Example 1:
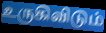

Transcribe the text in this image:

உருகிவிடும்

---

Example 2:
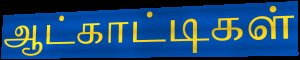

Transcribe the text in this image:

ஆட்காட்டிகள்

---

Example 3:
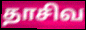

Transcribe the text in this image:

தாசிவ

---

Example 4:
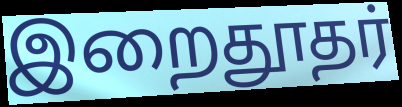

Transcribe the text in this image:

இறைதூதர்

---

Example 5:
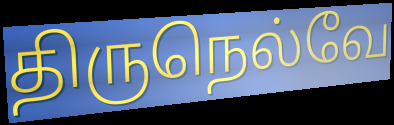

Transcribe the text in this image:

திருநெல்வே